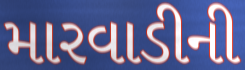
મારવાડીની